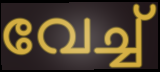
വേച്ച്